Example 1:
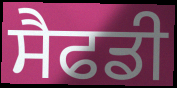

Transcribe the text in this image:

ਸੈਫਡੀ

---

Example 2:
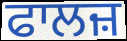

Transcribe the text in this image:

ਫਾਲਜ਼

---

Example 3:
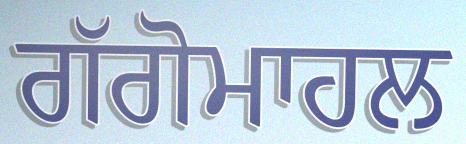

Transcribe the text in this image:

ਗੱਗੋਮਾਹਲ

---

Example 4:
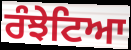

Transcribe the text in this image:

ਰੰਝੇਟਿਆ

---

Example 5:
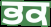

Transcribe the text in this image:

ਭਕ